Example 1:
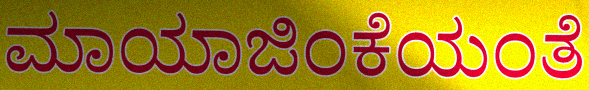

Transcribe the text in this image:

ಮಾಯಾಜಿಂಕೆಯಂತೆ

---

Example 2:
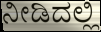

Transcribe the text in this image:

ನೀಡಿದಲ್ಲಿ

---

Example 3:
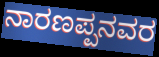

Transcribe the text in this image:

ನಾರಣಪ್ಪನವರ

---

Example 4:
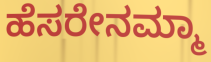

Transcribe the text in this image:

ಹೆಸರೇನಮ್ಮಾ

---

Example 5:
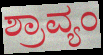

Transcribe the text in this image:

ಶ್ರಾವ್ಯಂ